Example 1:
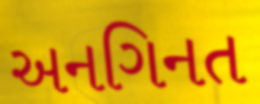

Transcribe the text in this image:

અનગિનત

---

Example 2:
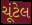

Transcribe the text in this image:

ચૂંટેલ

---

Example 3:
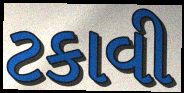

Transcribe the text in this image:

ટકાવી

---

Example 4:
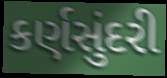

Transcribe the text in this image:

કર્ણસુંદરી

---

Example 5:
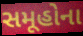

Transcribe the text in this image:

સમૂહોના